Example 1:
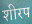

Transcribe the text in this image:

शीरप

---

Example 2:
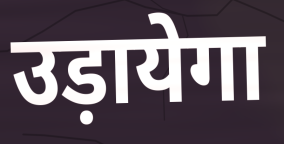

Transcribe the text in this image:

उड़ायेगा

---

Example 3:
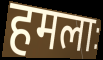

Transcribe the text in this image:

हमलाः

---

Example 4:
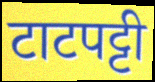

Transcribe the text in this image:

टाटपट्टी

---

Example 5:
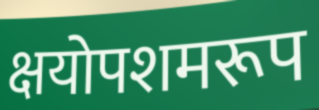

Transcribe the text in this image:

क्षयोपशमरूप